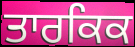
ਤਾਰਕਿਕ